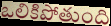
ఒలికిపోతుంది